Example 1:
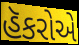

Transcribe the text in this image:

હૅકરોએ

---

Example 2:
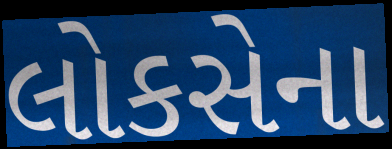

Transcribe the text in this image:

લોકસેના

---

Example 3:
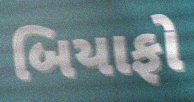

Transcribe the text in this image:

બિયાફો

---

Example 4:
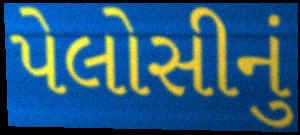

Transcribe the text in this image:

પેલોસીનું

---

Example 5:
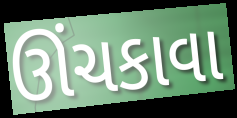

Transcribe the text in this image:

ઊંચકાવા